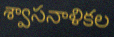
శ్వాసనాళికల